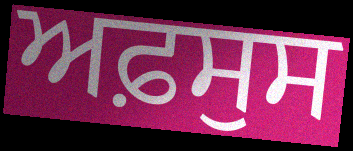
ਅਫ਼ਸੁਸ